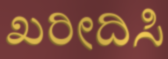
ಖರೀದಿಸಿ